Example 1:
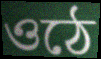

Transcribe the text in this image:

ওঠে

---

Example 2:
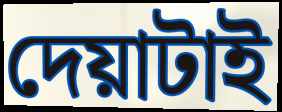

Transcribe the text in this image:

দেয়াটাই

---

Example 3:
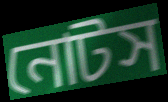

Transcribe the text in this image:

নোটস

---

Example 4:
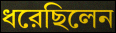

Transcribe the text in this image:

ধরেছিলেন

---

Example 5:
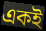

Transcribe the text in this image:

একই